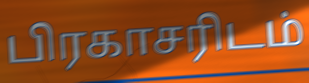
பிரகாசரிடம்